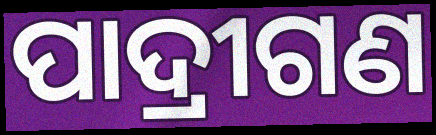
ପାଦ୍ରୀଗଣ